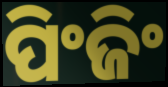
ପିଂଜିଂ